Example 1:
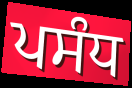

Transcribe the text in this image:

ਪਸੰਧ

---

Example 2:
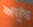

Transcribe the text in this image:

ਅਯੂੱਬ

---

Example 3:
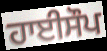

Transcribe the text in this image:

ਹਾਈਸੌਪ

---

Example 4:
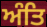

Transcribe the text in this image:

ਅੰਤਿ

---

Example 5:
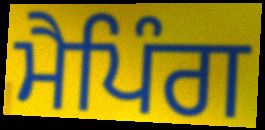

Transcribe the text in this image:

ਮੈਪਿੰਗ